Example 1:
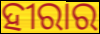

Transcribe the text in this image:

ହୀରାର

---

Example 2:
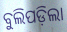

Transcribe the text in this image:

ବୁଲିପଡ଼ିଲା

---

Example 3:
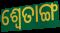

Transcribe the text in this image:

ଶ୍ୱେତାଙ୍ଗ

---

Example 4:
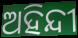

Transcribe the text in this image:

ଅହିନ୍ଦୀ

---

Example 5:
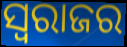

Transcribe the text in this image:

ସ୍ୱରାଜର